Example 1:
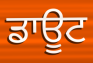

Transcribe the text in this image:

ਡਾਊਟ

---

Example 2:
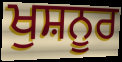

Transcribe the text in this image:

ਖੁਸ਼ਨੂਰ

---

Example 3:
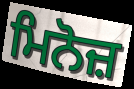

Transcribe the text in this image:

ਮਿਨੋਜ਼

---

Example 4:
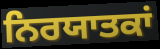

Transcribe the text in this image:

ਨਿਰਯਾਤਕਾਂ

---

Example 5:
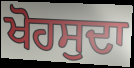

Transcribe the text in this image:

ਖੋਹਸੁਦਾ